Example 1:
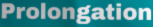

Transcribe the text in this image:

Prolongation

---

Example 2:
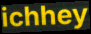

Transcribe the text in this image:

ichhey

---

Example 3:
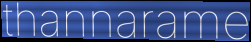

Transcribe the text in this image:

thannarame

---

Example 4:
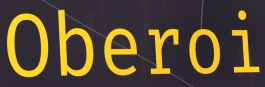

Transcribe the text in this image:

Oberoi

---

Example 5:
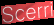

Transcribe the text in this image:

Scerri